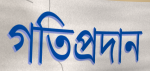
গতিপ্রদান